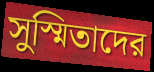
সুস্মিতাদের